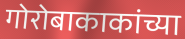
गोरोबाकाकांच्या